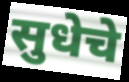
सुधेचे